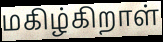
மகிழ்கிறாள்